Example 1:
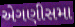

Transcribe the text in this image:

એગણીસમા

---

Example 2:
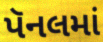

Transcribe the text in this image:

પૅનલમાં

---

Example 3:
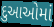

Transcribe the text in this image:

દુઆઓમાં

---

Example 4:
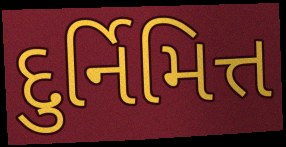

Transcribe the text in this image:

દુર્નિમિત્ત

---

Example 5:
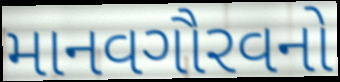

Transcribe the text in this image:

માનવગૌરવનો